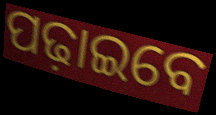
ପଢ଼ାଇବେ